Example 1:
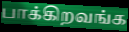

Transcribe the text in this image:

பாக்கிறவங்க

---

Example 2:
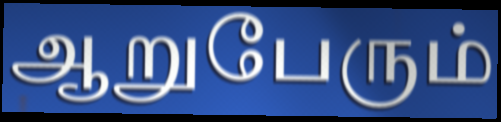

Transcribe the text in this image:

ஆறுபேரும்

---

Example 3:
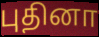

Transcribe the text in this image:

புதினா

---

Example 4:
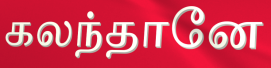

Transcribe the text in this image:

கலந்தானே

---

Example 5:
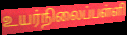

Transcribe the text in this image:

உயர்நிலைப்பள்ளி